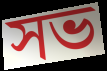
সভ